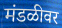
मंडळीवर